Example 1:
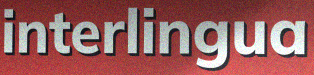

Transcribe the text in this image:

interlingua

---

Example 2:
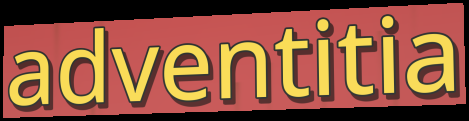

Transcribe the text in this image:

adventitia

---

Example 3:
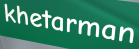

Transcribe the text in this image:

khetarman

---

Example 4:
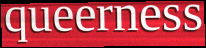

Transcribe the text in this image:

queerness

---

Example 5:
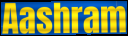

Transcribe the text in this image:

Aashram